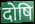
दोषि